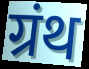
ग्रंथ